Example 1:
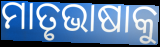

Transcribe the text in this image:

ମାତୃଭାଷାକୁ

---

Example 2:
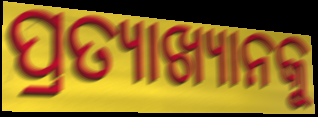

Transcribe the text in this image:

ପ୍ରତ୍ୟାଖ୍ୟାନକୁ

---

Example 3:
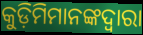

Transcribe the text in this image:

କୁଡ଼ିମିମାନଙ୍କଦ୍ୱାରା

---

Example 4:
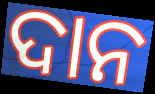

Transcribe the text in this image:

ଦାନ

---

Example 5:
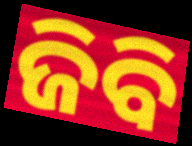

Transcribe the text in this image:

ଜିବି